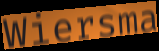
Wiersma